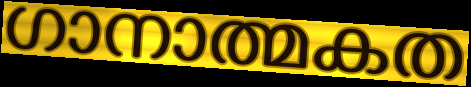
ഗാനാത്മകത